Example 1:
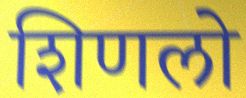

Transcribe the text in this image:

शिणलो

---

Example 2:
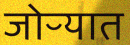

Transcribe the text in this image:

जोऱ्यात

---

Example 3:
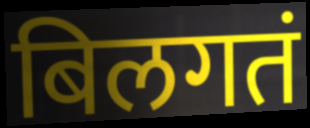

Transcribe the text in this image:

बिलगतं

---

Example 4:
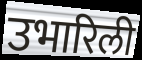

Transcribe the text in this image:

उभारिली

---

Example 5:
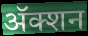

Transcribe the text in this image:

ॲक्शन